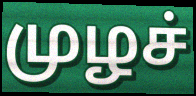
முழச்